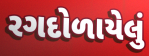
રગદોળાયેલું